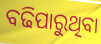
ବଢିପାରୁଥିବା